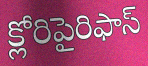
క్లోరిపైరిఫాస్